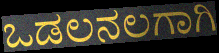
ಒಡಲನಲಗಾಗಿ